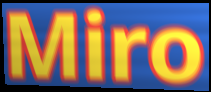
Miro